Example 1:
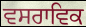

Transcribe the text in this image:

ਵਸਰਾਵਿਕ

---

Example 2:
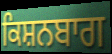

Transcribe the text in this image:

ਕਿਸ਼ਨਬਾਗ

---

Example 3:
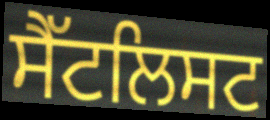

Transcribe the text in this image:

ਸੈੱਟਲਿਸਟ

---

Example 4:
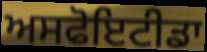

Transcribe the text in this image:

ਅਸਫੋਇਟੀਡਾ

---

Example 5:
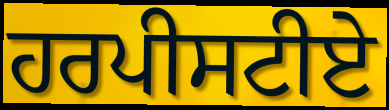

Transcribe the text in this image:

ਹਰਪੀਸਟੀਏ